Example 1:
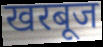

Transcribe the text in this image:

खरबूज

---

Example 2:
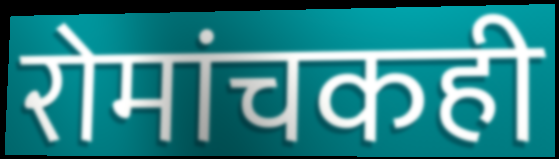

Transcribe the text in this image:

रोमांचकही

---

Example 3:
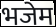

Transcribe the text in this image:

भजेम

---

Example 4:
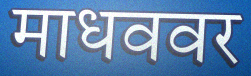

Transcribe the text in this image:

माधववर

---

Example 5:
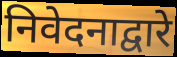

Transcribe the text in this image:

निवेदनाद्वारे